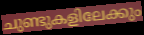
ചുണ്ടുകളിലേക്കും